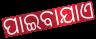
ପାଇବାଯାଏ